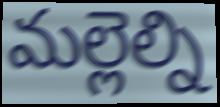
మల్లెల్ని